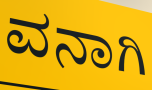
ವನಾಗಿ